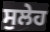
ਸੁਲੇਹ